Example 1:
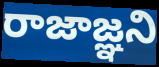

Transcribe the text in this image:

రాజాజ్ఞని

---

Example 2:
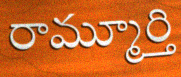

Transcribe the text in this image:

రామ్మూర్తి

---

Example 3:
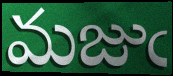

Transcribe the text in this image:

మజుఁ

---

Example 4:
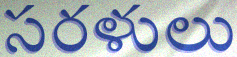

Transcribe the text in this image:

సరళులు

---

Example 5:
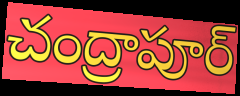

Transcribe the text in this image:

చంద్రాపూర్